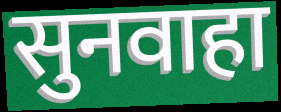
सुनवाहा